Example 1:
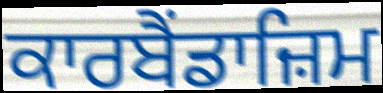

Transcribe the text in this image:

ਕਾਰਬੈਂਡਾਜ਼ਿਮ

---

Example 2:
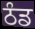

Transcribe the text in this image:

ਠੰਡ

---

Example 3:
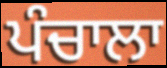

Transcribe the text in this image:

ਪੰਚਾਲਾ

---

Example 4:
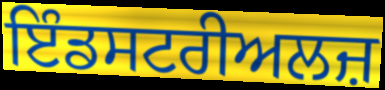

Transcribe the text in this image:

ਇੰਡਸਟਰੀਅਲਜ਼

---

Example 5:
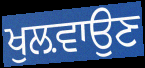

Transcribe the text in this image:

ਖੁਲ਼ਵਾਉਣ